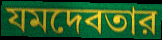
যমদেবতার